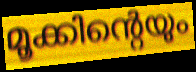
മൂക്കിന്റെയും